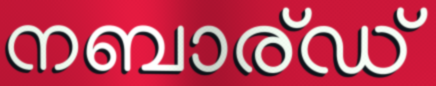
നബാര്ഡ്